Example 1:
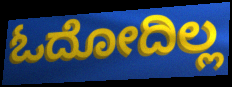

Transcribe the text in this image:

ಓದೋದಿಲ್ಲ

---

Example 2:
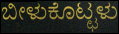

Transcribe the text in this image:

ಬೀಳುಕೊಟ್ಟಳು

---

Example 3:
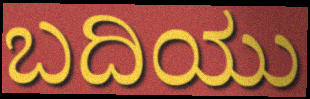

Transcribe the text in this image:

ಬದಿಯು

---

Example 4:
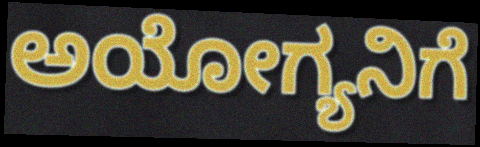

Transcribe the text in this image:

ಅಯೋಗ್ಯನಿಗೆ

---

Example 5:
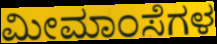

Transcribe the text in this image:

ಮೀಮಾಂಸೆಗಳ